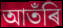
আতঁৰি